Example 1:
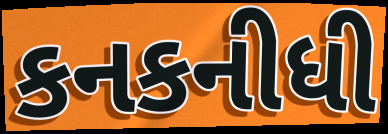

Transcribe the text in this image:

કનકનીધી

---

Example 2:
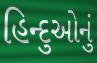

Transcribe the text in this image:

હિન્દુઓનું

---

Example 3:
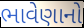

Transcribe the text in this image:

ભાવેણાનો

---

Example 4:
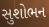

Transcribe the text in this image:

સુશોભન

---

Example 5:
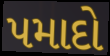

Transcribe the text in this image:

પમાદો